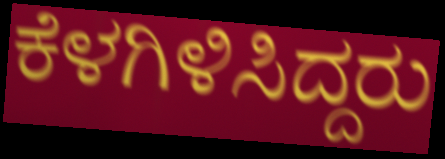
ಕೆಳಗಿಳಿಸಿದ್ದರು